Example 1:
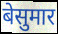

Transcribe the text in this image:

बेसुमार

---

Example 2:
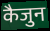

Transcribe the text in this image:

कैजुन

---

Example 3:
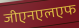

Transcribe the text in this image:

जीएनएलएफ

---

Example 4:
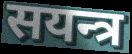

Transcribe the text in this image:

सयन्त्र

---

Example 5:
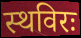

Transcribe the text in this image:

स्थविरः